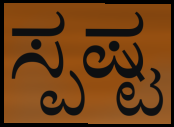
ಸ್ಪಷ್ಟ